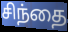
சிந்தை